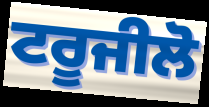
ਟਰੂਜੀਲੋ